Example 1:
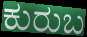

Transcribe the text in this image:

ಕುರುಬ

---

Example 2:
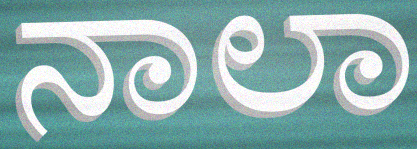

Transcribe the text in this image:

ನಾಲಾ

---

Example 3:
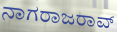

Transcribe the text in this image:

ನಾಗರಾಜರಾವ್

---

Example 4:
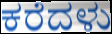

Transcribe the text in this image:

ಕರೆದಳು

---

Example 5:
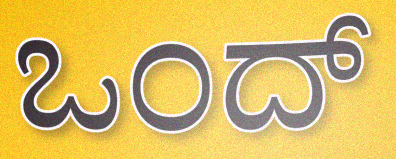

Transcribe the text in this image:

ಒಂದ್